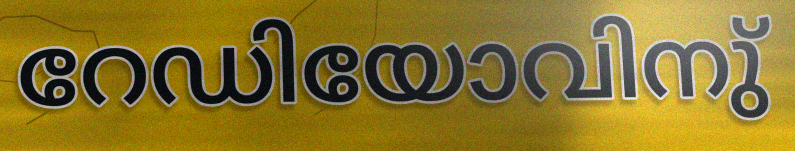
റേഡിയോവിനു്